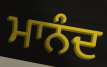
ਮਾਨੰਦ